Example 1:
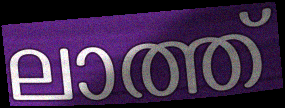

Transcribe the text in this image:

ലാത്ത്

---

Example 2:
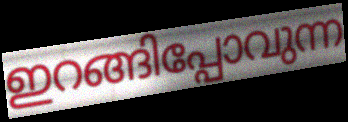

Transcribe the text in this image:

ഇറങ്ങിപ്പോവുന്ന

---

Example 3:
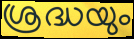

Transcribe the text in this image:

ശ്രദ്ധയും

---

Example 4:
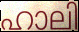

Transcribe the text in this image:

ഹാലി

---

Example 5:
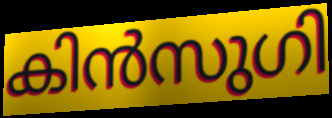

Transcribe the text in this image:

കിൻസുഗി